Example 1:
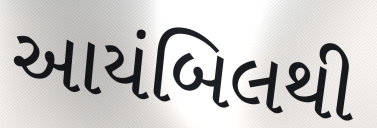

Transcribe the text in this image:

આયંબિલથી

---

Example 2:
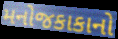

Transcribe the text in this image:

મનોજકાકાનો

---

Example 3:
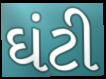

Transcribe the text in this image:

ઘંટી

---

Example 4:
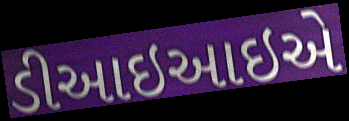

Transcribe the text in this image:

ડીઆઇઆઇએ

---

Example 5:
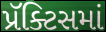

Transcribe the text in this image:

પ્રૅક્ટિસમાં